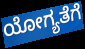
ಯೋಗ್ಯತೆಗೆ